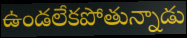
ఉండలేకపోతున్నాడు